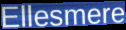
Ellesmere